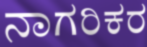
ನಾಗರಿಕರ